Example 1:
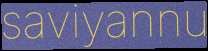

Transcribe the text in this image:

saviyannu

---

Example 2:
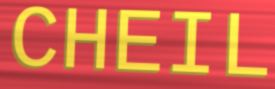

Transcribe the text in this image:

CHEIL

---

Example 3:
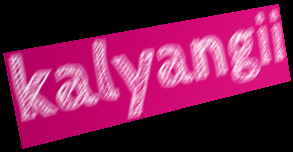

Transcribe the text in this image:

kalyangii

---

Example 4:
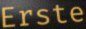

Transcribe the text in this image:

Erste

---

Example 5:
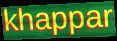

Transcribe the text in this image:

khappar